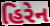
હિરેન